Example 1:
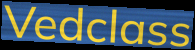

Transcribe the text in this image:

Vedclass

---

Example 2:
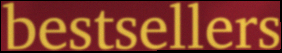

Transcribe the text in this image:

bestsellers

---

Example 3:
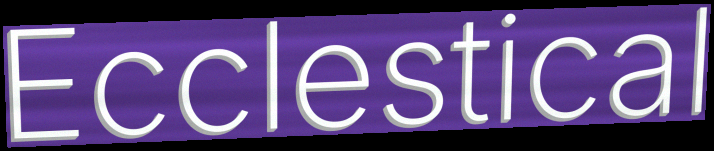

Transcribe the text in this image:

Ecclestical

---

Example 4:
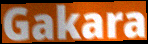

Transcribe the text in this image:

Gakara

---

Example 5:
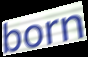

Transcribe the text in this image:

born